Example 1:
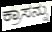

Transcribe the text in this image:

ಕ್ರಾಸನ್ನು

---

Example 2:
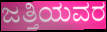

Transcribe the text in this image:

ಜತ್ತಿಯವರ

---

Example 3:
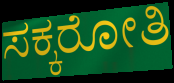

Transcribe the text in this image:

ಸಕ್ಕರೋತಿ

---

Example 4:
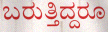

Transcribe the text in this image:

ಬರುತ್ತಿದ್ದರೂ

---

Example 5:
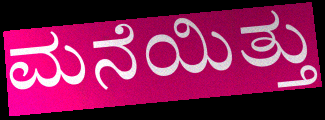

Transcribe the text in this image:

ಮನೆಯಿತ್ತು